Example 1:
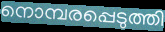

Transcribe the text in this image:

നൊമ്പരപ്പെടുത്തി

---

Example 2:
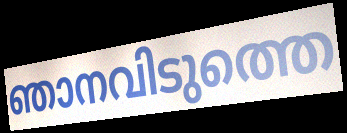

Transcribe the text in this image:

ഞാനവിടുത്തെ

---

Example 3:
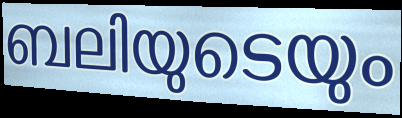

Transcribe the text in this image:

ബലിയുടെയും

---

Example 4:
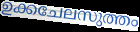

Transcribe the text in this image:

ഉക്കചേലസുത്തം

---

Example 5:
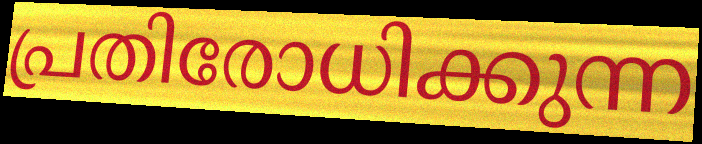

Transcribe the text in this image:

പ്രതിരോധിക്കുന്ന